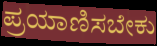
ಪ್ರಯಾಣಿಸಬೇಕು